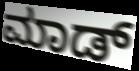
ಮಾಡ್